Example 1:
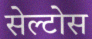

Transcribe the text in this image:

सेल्टोस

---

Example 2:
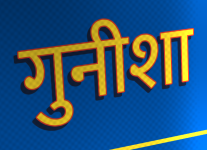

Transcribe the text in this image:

गुनीशा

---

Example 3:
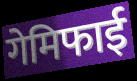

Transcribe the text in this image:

गेमिफाई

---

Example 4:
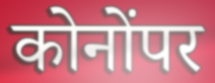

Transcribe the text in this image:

कोनोंपर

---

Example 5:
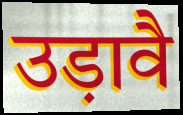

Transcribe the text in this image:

उड़ावै